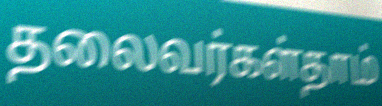
தலைவர்கள்தாம்